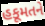
હકૂમતને